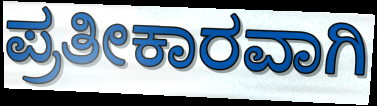
ಪ್ರತೀಕಾರವಾಗಿ